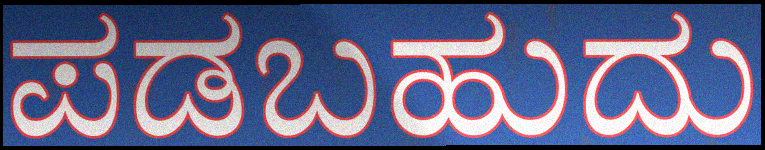
ಪಡಬಹುದು